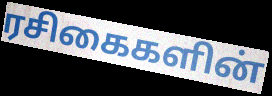
ரசிகைகளின்